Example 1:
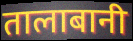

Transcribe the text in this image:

तालाबानी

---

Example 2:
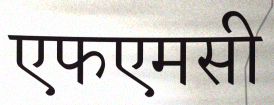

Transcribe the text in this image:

एफएमसी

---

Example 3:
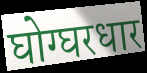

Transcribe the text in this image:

घोग्घरधार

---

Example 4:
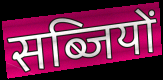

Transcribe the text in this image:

सब्जियों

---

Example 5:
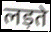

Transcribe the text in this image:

लड़ते